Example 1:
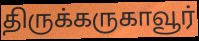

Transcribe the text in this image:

திருக்கருகாவூர்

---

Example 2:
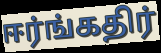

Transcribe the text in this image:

ஈர்ங்கதிர்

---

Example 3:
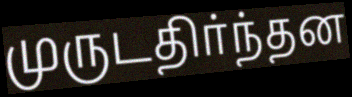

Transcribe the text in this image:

முருடதிர்ந்தன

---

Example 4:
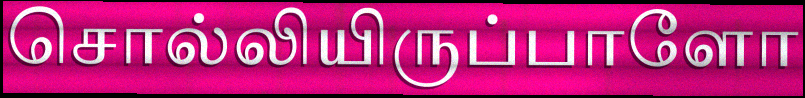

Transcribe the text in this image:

சொல்லியிருப்பாளோ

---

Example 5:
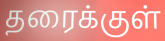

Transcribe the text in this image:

தரைக்குள்